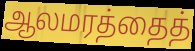
ஆலமரத்தைத்